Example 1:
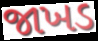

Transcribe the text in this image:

જાખડ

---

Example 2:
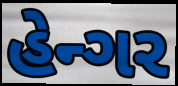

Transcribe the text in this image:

હેન્ગર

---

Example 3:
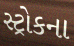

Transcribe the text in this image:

સ્ટ્રોકના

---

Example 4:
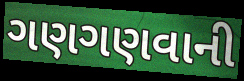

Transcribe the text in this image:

ગણગણવાની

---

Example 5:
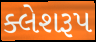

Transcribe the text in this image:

ક્લેશરૂપ